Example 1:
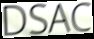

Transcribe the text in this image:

DSAC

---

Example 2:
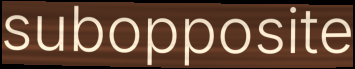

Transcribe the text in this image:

subopposite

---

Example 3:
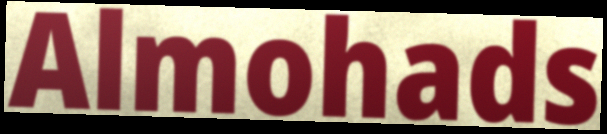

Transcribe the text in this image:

Almohads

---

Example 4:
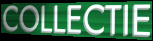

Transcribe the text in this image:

COLLECTIE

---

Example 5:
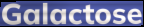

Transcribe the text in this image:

Galactose